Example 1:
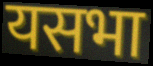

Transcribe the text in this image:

यसभा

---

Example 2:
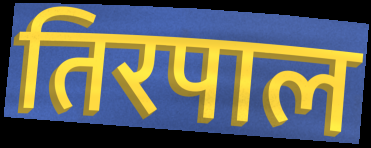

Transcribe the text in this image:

तिरपाल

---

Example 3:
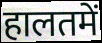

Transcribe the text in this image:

हालतमें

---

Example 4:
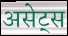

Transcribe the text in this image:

असेट्स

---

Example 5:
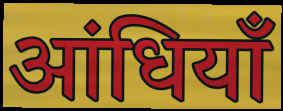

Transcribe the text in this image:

आंधियाँ